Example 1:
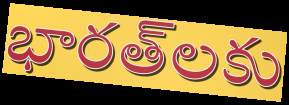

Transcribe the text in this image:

భారత్‌లకు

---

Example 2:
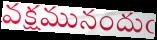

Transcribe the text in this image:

వక్షమునందుఁ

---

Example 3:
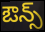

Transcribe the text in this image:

ఔన్స్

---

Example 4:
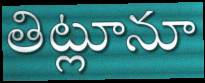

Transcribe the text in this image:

తిట్లూనూ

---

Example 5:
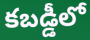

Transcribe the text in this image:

కబడ్డీలో